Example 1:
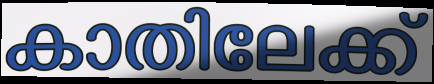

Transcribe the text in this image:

കാതിലേക്ക്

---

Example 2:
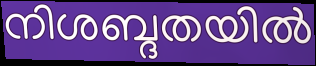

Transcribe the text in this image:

നിശബ്ദതയിൽ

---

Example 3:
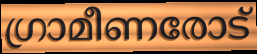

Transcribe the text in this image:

ഗ്രാമീണരോട്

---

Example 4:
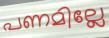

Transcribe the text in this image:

പണമില്ലേ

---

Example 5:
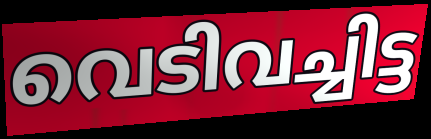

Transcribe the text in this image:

വെടിവച്ചിട്ട